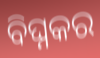
ବିଘ୍ନକର